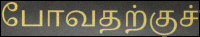
போவதற்குச்